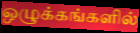
ஒழுக்கங்களில்